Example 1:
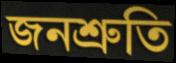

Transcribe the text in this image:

জনশ্ৰুতি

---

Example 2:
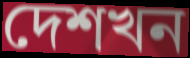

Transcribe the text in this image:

দেশখন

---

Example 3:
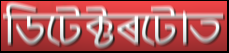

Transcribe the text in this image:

ডিটেক্টৰটোত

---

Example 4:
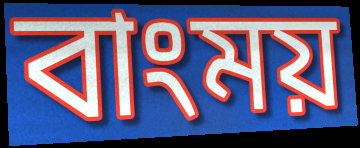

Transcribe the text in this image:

বাংময়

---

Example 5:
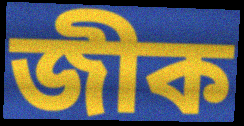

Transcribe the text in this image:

জীক